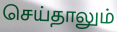
செய்தாலும்